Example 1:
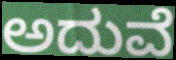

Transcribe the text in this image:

ಅದುವೆ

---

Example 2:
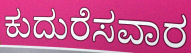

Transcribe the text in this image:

ಕುದುರೆಸವಾರ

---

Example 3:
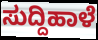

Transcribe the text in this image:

ಸುದ್ದಿಹಾಳೆ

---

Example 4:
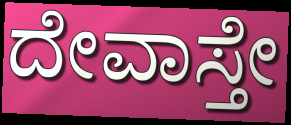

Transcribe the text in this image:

ದೇವಾಸ್ತೇ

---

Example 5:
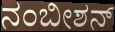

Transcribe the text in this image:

ನಂಬೀಶನ್